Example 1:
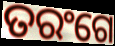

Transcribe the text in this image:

ତରଂଗେ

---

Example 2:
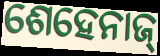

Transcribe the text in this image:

ଶେହେନାଜ୍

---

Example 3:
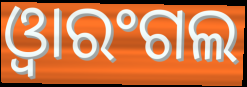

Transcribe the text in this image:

ଓ୍ୱାରଂଗଲ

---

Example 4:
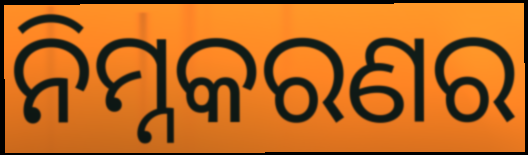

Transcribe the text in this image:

ନିମ୍ନକରଣର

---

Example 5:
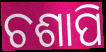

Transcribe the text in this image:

ଚଶାପି